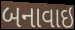
બનાવાઇ